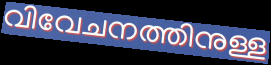
വിവേചനത്തിനുള്ള